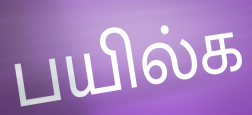
பயில்க